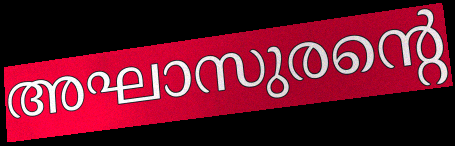
അഘാസുരന്റെ